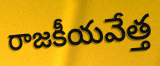
రాజకీయవేత్త